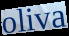
oliva